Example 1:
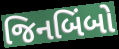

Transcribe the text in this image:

જિનબિંબો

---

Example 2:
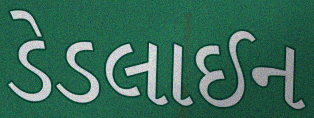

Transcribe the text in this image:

ડેડલાઈન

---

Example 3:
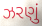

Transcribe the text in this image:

ઝરણું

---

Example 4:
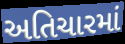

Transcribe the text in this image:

અતિચારમાં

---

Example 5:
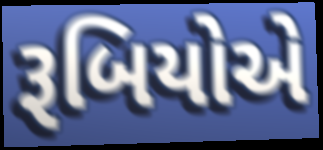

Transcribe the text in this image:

રૂબિયોએ